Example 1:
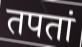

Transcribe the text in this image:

तपतां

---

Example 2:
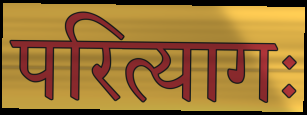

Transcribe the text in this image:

परित्यागः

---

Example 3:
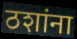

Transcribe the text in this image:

ठशांना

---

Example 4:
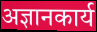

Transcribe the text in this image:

अज्ञानकार्य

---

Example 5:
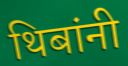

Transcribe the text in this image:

थिबांनी